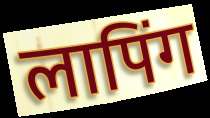
लापिंग